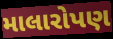
માલારોપણ